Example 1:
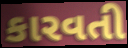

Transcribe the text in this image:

કારવતી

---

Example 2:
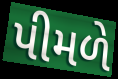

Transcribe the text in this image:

પીમળે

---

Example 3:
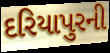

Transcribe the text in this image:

દરિયાપુરની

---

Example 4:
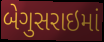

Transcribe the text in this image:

બેગુસરાઇમાં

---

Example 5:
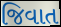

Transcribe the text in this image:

જિવાત